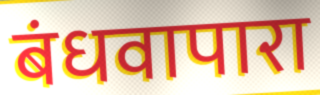
बंधवापारा